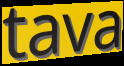
tava